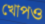
খোপও